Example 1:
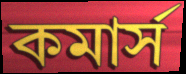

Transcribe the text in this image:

কমার্স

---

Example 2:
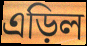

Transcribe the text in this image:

এড়িল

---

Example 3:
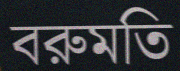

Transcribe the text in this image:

বরুমতি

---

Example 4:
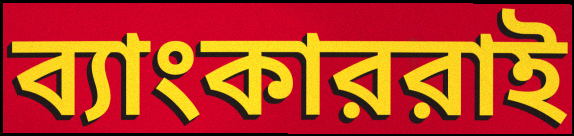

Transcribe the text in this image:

ব্যাংকাররাই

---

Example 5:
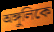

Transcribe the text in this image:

অঙ্গুলিকে